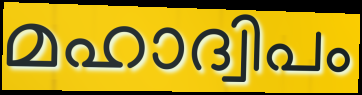
മഹാദ്വിപം